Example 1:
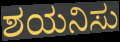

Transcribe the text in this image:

ಶಯನಿಸು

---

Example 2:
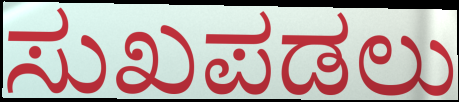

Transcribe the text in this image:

ಸುಖಪಡಲು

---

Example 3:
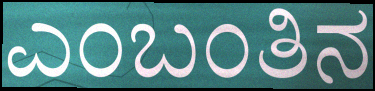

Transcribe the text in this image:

ಎಂಬಂತಿನ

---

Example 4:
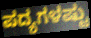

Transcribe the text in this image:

ಪದ್ಯಗಳಷ್ಟು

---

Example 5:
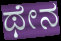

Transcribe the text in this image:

ಥೇನ